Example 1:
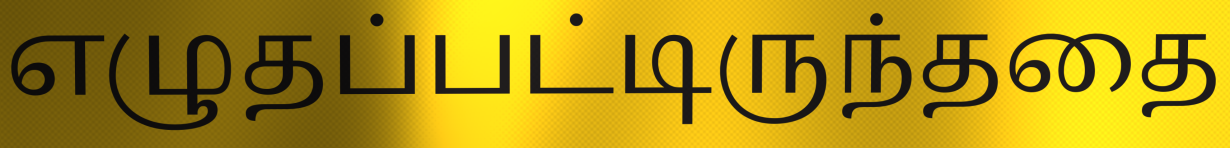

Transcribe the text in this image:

எழுதப்பட்டிருந்ததை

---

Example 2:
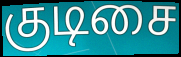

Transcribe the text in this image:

குடிசை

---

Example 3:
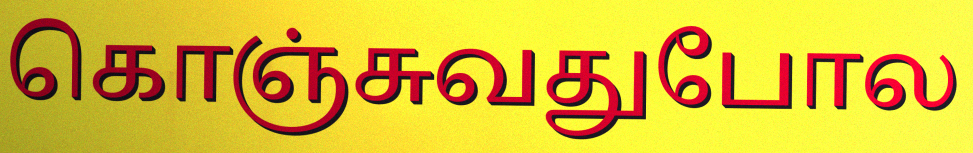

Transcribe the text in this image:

கொஞ்சுவதுபோல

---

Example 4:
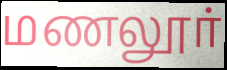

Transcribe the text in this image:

மணலூர்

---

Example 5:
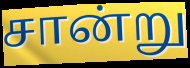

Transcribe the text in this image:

சான்று